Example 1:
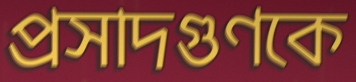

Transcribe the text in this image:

প্রসাদগুণকে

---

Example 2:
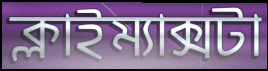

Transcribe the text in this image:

ক্লাইম্যাক্সটা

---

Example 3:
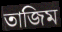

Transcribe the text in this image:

তাজিম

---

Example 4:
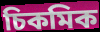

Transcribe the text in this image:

চিকমিক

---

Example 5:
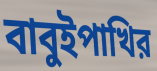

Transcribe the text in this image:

বাবুইপাখির